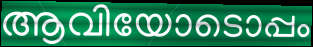
ആവിയോടൊപ്പം